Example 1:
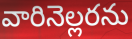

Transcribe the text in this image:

వారినెల్లరను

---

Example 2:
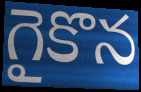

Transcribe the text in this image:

గైకొన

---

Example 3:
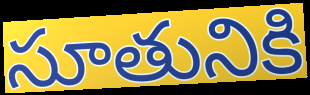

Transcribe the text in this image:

సూతునికి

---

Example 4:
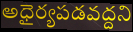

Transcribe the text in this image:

అధైర్యపడవద్దని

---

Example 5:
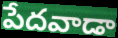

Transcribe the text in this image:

పేదవాడా